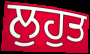
ਲੁਹੁਤ